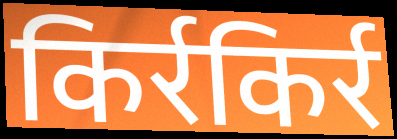
किर्रकिर्र